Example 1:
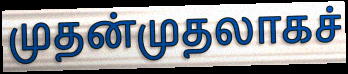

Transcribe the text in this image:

முதன்முதலாகச்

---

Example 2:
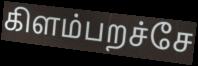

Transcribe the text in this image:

கிளம்பறச்சே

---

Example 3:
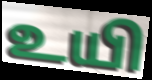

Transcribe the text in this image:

உயி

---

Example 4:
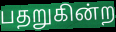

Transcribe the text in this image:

பதறுகின்ற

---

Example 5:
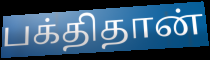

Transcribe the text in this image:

பக்திதான்